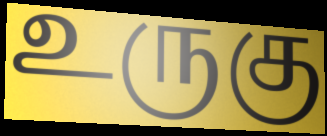
உருகு